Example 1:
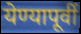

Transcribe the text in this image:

येण्यापूर्वी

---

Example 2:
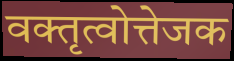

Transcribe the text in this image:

वक्तृत्वोत्तेजक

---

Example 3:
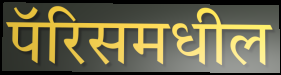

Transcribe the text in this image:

पॅरिसमधील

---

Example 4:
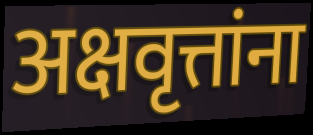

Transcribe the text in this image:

अक्षवृत्तांना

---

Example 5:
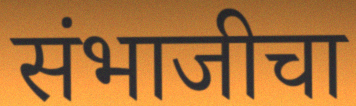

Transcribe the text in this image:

संभाजीचा